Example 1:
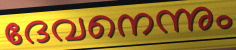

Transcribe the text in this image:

ദേവനെന്നും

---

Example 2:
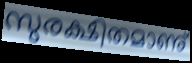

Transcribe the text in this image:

സുരക്ഷിതമാണു്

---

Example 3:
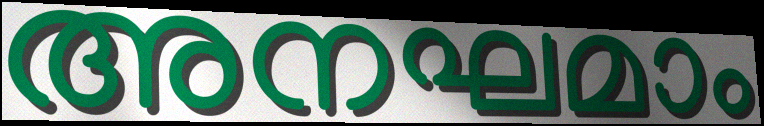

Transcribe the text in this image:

അനഘമാം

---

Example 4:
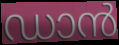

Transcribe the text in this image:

ഡാൻ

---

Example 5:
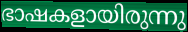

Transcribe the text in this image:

ഭാഷകളായിരുന്നു